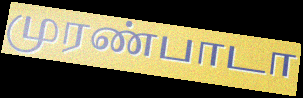
முரண்பாடா